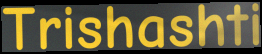
Trishashti